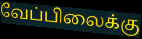
வேப்பிலைக்கு